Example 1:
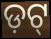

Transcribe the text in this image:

ଡ଼ଟ୍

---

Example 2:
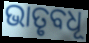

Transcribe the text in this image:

ଭାତୃବଧୂ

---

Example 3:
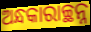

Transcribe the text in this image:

ଅନ୍ଧକାରାଚ୍ଛନ୍ନ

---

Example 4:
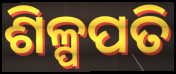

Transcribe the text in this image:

ଶିଳ୍ପପତି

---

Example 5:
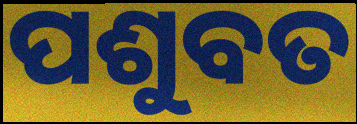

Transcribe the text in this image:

ପଶୁବତ